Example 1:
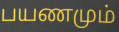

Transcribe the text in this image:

பயணமும்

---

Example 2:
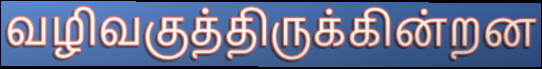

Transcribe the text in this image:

வழிவகுத்திருக்கின்றன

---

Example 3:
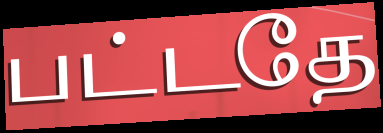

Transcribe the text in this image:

பட்டதே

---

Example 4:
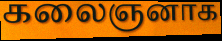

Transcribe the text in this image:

கலைஞனாக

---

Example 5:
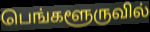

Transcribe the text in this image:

பெங்களூருவில்